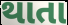
થાતા